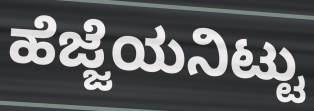
ಹೆಜ್ಜೆಯನಿಟ್ಟು